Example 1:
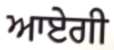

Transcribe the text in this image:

ਆਏਗੀ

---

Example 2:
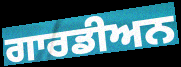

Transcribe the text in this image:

ਗਾਰਡੀਅਨ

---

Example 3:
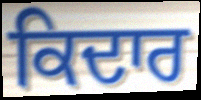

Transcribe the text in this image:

ਕਿਦਾਰ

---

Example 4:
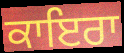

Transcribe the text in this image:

ਕਾਇਰਾ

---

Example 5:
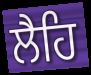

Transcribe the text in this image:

ਲੈਹਿ